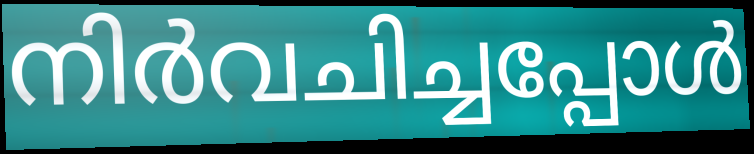
നിർവചിച്ചപ്പോൾ